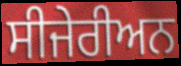
ਸੀਜੇਰੀਅਨ